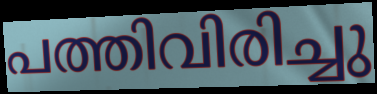
പത്തിവിരിച്ചു